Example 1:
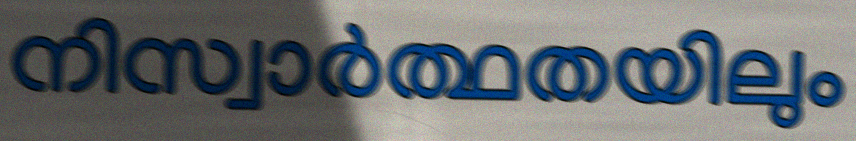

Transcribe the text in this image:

നിസ്വാർത്ഥതയിലും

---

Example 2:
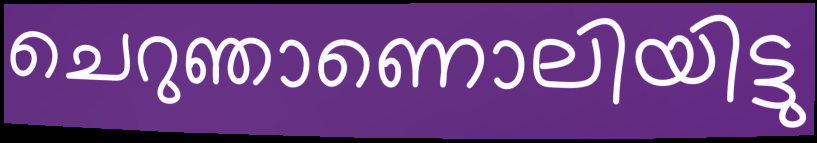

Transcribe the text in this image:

ചെറുഞാണൊലിയിട്ടു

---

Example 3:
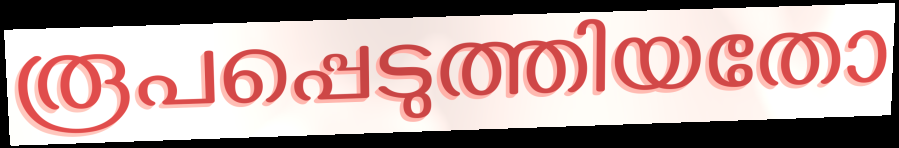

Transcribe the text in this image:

രൂപപ്പെടുത്തിയതോ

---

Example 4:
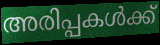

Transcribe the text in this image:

അരിപ്പകൾക്ക്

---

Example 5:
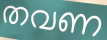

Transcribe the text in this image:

തവണ